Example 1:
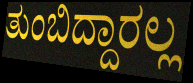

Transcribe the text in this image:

ತುಂಬಿದ್ದಾರಲ್ಲ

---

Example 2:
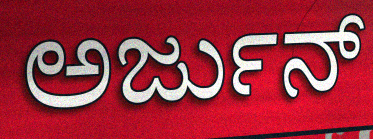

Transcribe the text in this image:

ಅರ್ಜುನ್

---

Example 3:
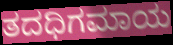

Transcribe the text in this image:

ತದಧಿಗಮಾಯ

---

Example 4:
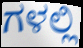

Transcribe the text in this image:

ಗಳಲ್ಲಿ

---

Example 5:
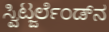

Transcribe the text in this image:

ಸ್ವಿಟ್ಜರ್ಲೆಂಡ್‌ನ